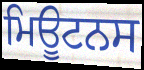
ਮਿਊਟਨਸ